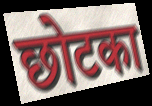
छोटका